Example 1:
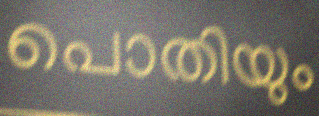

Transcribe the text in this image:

പൊതിയും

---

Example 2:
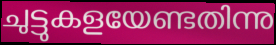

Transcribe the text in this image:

ചുട്ടുകളയേണ്ടതിന്നു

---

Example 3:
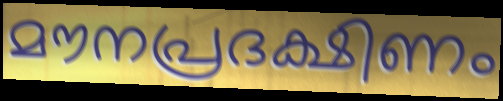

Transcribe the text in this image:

മൗനപ്രദക്ഷിണം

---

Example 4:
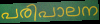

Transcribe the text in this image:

പരിപാലന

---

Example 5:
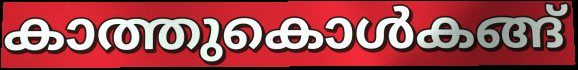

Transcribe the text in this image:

കാത്തുകൊൾകങ്ങ്